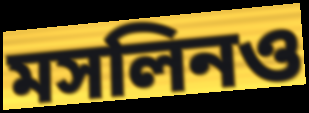
মসলিনও